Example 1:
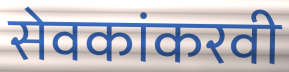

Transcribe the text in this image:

सेवकांकरवी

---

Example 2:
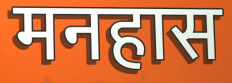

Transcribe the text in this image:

मनहास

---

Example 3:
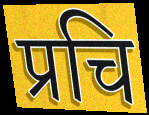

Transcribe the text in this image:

प्रचि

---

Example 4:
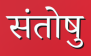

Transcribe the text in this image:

संतोषु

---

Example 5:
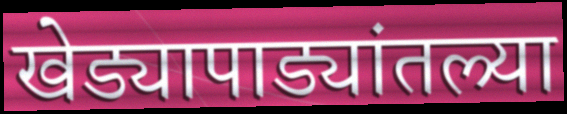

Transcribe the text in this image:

खेड्यापाड्यांतल्या